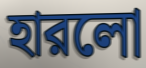
হারলো